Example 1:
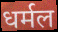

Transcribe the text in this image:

धर्मल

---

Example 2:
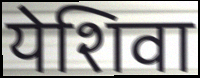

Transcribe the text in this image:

येशिवा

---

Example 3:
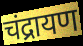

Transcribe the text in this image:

चंद्रायण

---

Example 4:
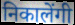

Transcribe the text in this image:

निकालेंगी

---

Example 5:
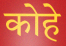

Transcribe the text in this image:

कोहे